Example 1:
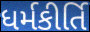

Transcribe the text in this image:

ધર્મકીર્તિ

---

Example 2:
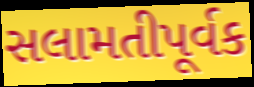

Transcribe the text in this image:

સલામતીપૂર્વક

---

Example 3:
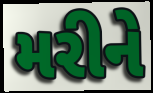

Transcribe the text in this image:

મરીને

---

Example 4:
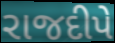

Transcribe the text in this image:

રાજદીપે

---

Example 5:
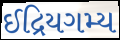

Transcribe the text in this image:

ઈદ્રિયગમ્ય